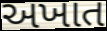
અખાત